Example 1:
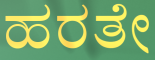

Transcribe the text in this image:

ಹರತೇ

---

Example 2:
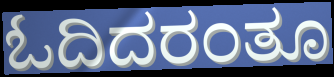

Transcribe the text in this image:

ಓದಿದರಂತೂ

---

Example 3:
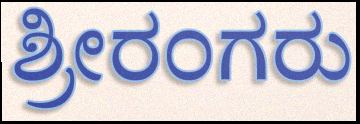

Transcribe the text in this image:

ಶ್ರೀರಂಗರು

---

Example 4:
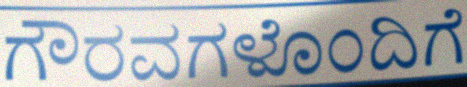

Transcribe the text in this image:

ಗೌರವಗಳೊಂದಿಗೆ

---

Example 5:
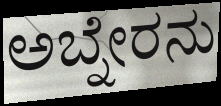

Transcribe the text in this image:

ಅಬ್ನೇರನು